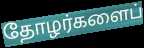
தோழர்களைப்